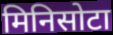
मिनिसोटा